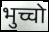
भुच्चो